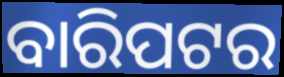
ବାରିପଟର